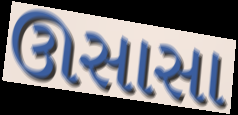
ઊસાસા